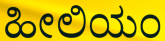
ಹೀಲಿಯಂ